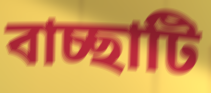
বাচ্ছাটি